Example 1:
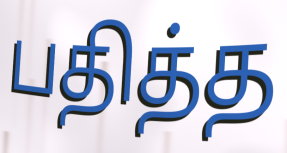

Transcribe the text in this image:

பதித்த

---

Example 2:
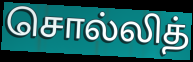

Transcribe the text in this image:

சொல்லித்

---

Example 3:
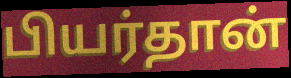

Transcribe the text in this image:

பியர்தான்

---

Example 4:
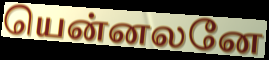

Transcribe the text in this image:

யென்னலனே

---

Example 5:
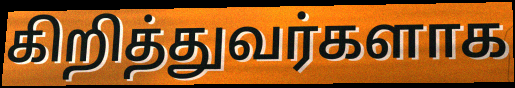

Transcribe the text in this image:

கிறித்துவர்களாக